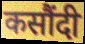
कसौंदी